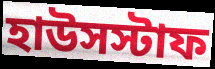
হাউসস্টাফ